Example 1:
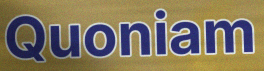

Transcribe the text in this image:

Quoniam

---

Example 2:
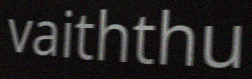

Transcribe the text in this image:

vaiththu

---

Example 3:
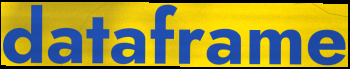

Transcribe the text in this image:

dataframe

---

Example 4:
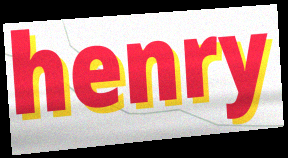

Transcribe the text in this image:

henry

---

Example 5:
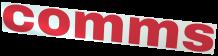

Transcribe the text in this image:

comms